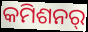
କମିଶନର୍